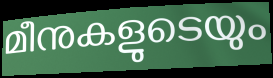
മീനുകളുടെയും